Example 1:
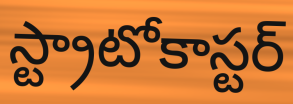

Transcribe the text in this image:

స్ట్రాటోకాస్టర్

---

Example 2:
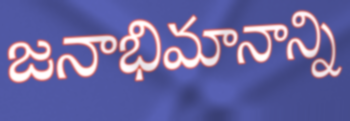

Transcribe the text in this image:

జనాభిమానాన్ని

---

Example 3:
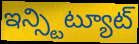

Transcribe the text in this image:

ఇన్స్టిట్యూట్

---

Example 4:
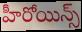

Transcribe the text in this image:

హీరోయిన్స్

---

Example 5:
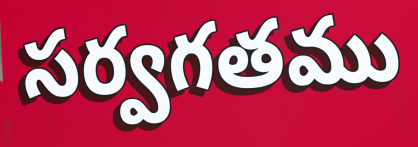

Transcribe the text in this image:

సర్వగతము